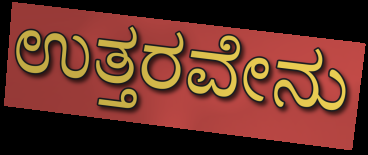
ಉತ್ತರವೇನು